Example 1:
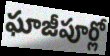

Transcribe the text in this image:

ఘాజీపూర్లో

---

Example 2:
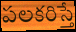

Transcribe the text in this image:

పలకరిస్తే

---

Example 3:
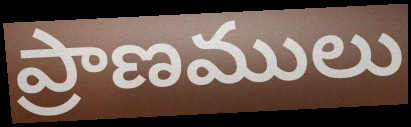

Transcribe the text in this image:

ప్రాణములు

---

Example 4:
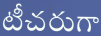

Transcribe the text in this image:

టీచరుగా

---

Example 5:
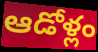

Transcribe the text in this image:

ఆడోళ్లం